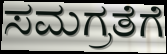
ಸಮಗ್ರತೆಗೆ